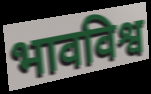
भावविश्व